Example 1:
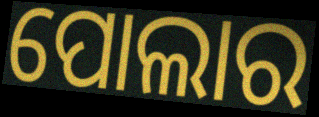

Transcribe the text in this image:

ପୋଲାର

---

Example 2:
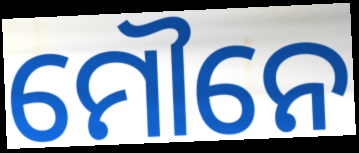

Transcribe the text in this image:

ମୌନେ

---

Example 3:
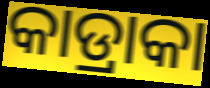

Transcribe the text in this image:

କାଡ୍ରାକା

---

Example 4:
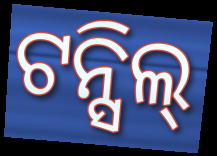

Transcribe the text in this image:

ଟନ୍ସିଲ୍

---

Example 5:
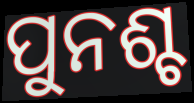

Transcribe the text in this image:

ପୁନଶ୍ଚ